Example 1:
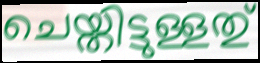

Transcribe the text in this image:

ചെയ്തിട്ടുള്ളതു്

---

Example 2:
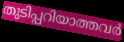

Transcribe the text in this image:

തുടിപ്പറിയാത്തവർ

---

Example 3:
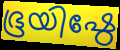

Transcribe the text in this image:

ഭൂയിഷ്ഠേ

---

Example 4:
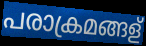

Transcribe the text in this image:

പരാക്രമങ്ങള്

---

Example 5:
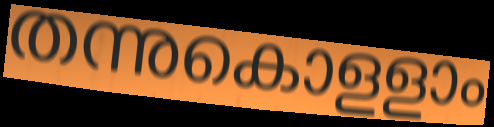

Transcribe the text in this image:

തന്നുകൊളളാം